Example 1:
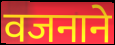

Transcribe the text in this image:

वजनाने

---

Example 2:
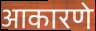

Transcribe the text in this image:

आकारणे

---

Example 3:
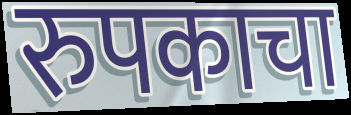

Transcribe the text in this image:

रुपकाचा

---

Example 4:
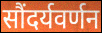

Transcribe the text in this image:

सौंदर्यवर्णन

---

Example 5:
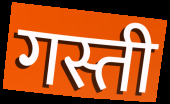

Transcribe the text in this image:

गस्ती